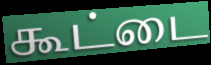
கூட்டை